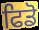
ਫਿਡੋ